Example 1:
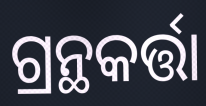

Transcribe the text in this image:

ଗ୍ରନ୍ଥକର୍ତ୍ତା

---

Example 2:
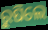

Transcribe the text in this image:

ରୁଷିଲେ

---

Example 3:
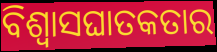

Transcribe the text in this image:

ବିଶ୍ଵାସଘାତକତାର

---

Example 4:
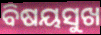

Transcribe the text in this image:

ବିଷୟସୁଖ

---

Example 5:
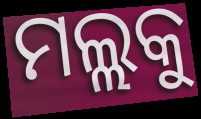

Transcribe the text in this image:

ମଲ୍ଲକୁ